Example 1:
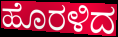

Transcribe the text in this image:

ಹೊರಳಿದ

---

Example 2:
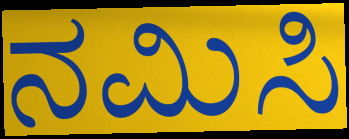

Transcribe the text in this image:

ನಮಿಸಿ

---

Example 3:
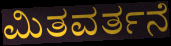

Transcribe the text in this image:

ಮಿತವರ್ತನೆ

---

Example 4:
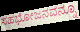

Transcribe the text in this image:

ಸಹಭೋಜನವನ್ನೂ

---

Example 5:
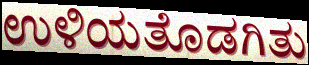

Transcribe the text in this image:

ಉಳಿಯತೊಡಗಿತು